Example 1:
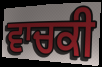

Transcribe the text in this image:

ਵਾਚਕੀ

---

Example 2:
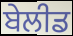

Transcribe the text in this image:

ਬੇਲੀਡ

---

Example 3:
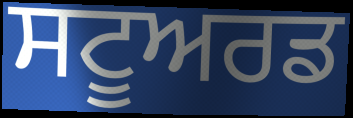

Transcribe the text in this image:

ਸਟੂਅਰਡ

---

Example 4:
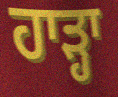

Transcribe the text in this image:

ਹਾੜ੍ਹਾ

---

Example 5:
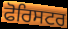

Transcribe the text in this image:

ਫੋਰਿਸਟਰ